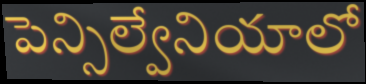
పెన్సిల్వేనియాలో